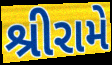
શ્રીરામે